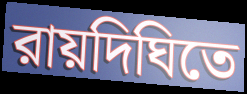
রায়দিঘিতে